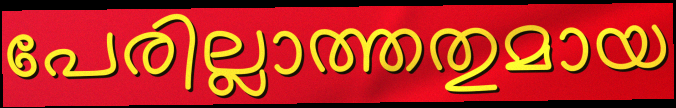
പേരില്ലാത്തതുമായ